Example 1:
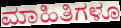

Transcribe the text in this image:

ಮಾಹಿತಿಗಳೂ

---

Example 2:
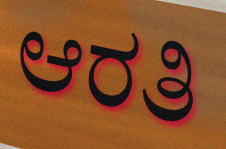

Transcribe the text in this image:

ಆರತಿ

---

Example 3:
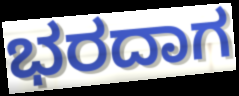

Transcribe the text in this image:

ಭರದಾಗ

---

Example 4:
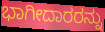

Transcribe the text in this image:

ಭಾಗೀದಾರರನ್ನು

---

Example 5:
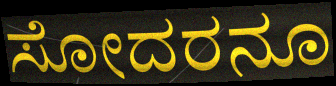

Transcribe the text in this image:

ಸೋದರನೂ